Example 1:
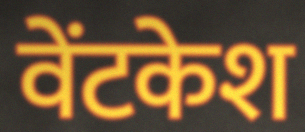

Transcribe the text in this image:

वेंटकेश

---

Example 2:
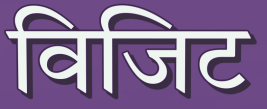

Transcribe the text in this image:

विजिट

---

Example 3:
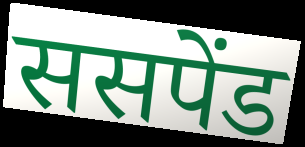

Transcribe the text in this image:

ससपेंड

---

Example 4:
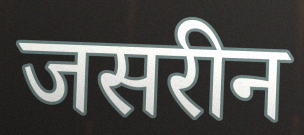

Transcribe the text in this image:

जसरीन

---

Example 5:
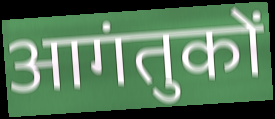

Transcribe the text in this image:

आगंतुकों